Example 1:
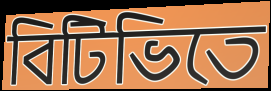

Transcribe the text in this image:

বিটিভিতে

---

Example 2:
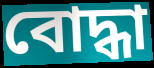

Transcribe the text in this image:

বোদ্ধা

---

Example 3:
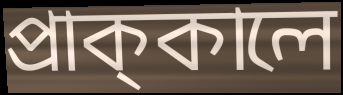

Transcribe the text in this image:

প্রাক্‌কালে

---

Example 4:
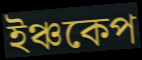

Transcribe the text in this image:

ইঞ্চকেপ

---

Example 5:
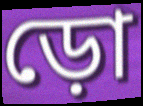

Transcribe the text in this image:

ড়ো